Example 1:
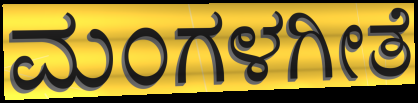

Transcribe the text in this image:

ಮಂಗಳಗೀತೆ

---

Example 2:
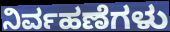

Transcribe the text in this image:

ನಿರ್ವಹಣೆಗಳು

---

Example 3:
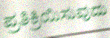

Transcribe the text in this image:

ಪ್ರತಿಕ್ರಿಯಿಸುವುದು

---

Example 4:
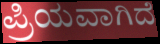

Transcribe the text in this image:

ಪ್ರಿಯವಾಗಿದೆ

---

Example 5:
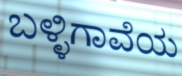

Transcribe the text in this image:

ಬಳ್ಳಿಗಾವೆಯ